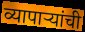
व्यापाऱ्यांची